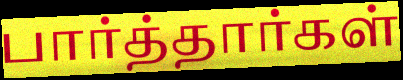
பார்த்தார்கள்